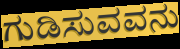
ಗುಡಿಸುವವನು